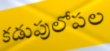
కడుపులోపల